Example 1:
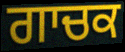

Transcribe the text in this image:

ਗਾਚਕ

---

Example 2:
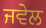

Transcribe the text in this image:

ਜਵੇਲ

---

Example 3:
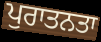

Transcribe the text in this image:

ਪੁਰਾਤਨਤਾ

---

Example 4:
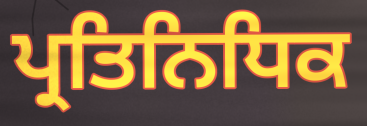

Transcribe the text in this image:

ਪ੍ਰਤਿਨਿਧਿਕ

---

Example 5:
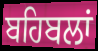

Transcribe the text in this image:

ਬਹਿਬਲਾਂ